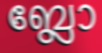
ബ്ലോ